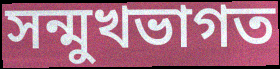
সন্মুখভাগত